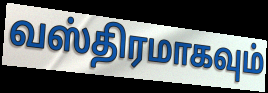
வஸ்திரமாகவும்